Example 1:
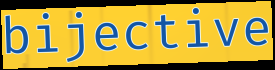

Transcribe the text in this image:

bijective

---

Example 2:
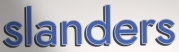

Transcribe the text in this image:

slanders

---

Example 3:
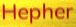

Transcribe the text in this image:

Hepher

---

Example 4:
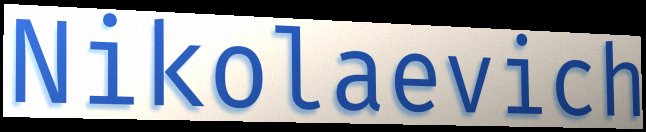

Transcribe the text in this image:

Nikolaevich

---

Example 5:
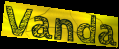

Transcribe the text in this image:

Vanda